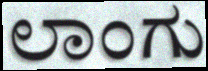
ಲಾಂಗು